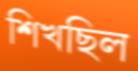
শিখছিল